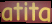
atita